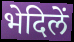
भेदिलें